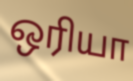
ஒரியா